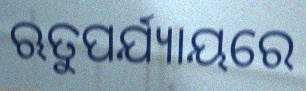
ଋତୁପର୍ଯ୍ୟାୟରେ